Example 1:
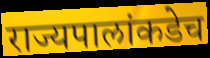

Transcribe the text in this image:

राज्यपालांकडेच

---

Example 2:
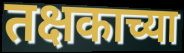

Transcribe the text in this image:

तक्षकाच्या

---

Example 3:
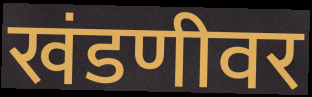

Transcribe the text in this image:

खंडणीवर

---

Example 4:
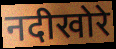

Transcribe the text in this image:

नदीखोरे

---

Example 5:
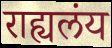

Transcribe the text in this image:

राह्यलंय